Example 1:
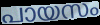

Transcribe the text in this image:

പായസം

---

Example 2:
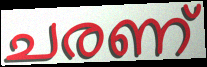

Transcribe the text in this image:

ചരണ്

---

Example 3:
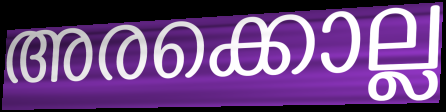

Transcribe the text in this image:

അരക്കൊല്ല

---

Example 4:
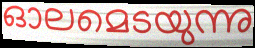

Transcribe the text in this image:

ഓലമെടയുന്നു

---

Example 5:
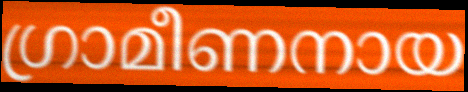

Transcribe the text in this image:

ഗ്രാമീണനായ